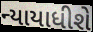
ન્યાયાધીશે